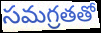
సమగ్రతతో